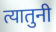
त्यातुनी